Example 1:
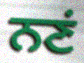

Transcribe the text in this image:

ਨਣਂ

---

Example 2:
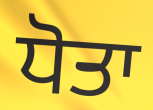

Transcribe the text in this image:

ਧੋਤਾ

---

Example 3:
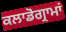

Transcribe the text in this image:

ਕਲਾਡੋਗ੍ਰਾਮਾਂ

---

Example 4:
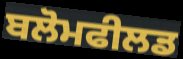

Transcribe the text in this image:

ਬਲੋਮਫੀਲਡ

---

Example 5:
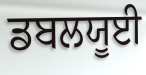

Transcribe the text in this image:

ਡਬਲਯੂਈ